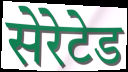
सेरेटेड